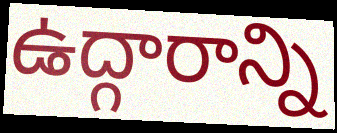
ఉద్గారాన్ని